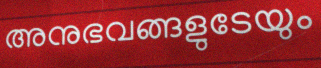
അനുഭവങ്ങളുടേയും